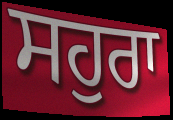
ਸਹੁਰਾ